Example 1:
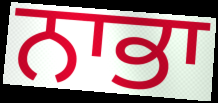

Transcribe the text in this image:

ਨਾਭਾ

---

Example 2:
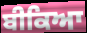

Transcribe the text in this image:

ਬੀਕਿਆ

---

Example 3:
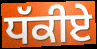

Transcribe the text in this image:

ਧੱਕੀਏ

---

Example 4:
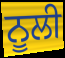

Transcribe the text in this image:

ਨੂਲੀ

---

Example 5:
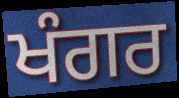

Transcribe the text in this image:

ਖੰਗਰ